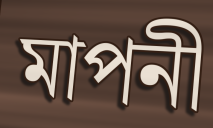
মাপনী